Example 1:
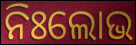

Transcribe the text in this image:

ନିଃଲୋଭ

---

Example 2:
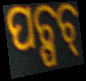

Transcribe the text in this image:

ପଚ୍ପଚ୍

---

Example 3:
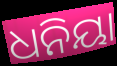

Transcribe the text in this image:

ଧନିୟା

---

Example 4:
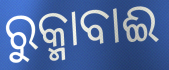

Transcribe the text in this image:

ରୁକ୍ମାବାଈ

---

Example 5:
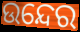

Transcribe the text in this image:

ଉନ୍ଦେର